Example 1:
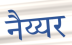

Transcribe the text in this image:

नैय्यर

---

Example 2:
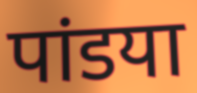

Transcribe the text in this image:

पांडया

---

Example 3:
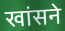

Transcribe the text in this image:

खांसने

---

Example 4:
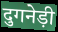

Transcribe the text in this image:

दुगनेड़ी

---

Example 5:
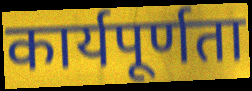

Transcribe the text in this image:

कार्यपूर्णता